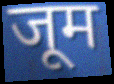
जूम